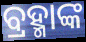
ବ୍ରହ୍ମାଙ୍କ